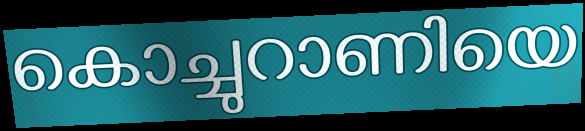
കൊച്ചുറാണിയെ